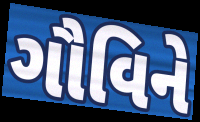
ગૌવિને